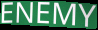
ENEMY